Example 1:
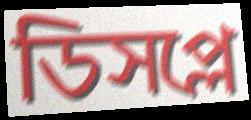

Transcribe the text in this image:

ডিসপ্লে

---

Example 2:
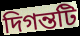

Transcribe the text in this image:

দিগন্তটি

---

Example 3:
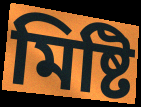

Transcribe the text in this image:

মিষ্টি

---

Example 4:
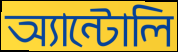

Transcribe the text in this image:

অ্যান্টোলি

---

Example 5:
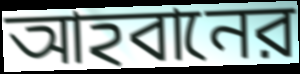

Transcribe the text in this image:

আহবানের